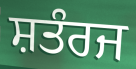
ਸ਼ਤੰਰਜ